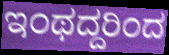
ಇಂಥದ್ದರಿಂದ